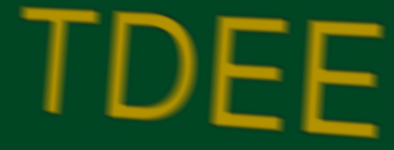
TDEE